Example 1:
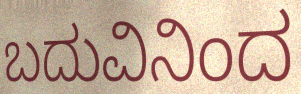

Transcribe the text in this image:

ಬದುವಿನಿಂದ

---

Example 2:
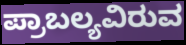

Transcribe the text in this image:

ಪ್ರಾಬಲ್ಯವಿರುವ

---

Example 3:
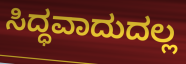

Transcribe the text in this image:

ಸಿದ್ಧವಾದುದಲ್ಲ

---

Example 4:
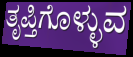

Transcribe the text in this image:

ತೃಪ್ತಿಗೊಳ್ಳುವ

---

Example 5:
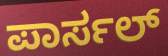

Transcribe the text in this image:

ಪಾರ್ಸಲ್